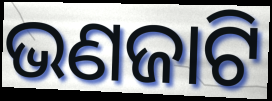
ଭଣଜାଟି